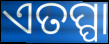
ଏତପ୍ପା